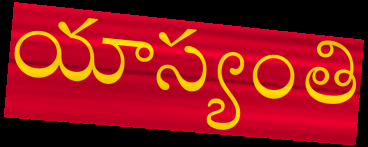
యాస్యంతి